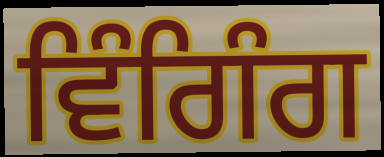
ਵਿੰਗਿੰਗ